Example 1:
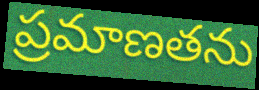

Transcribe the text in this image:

ప్రమాణతను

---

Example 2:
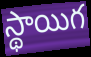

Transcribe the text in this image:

స్థాయిగ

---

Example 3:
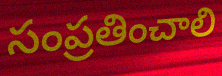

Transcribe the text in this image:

సంప్రతించాలి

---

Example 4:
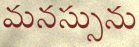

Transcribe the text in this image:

మనస్సును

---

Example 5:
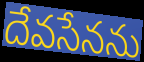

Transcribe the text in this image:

దేవసేనను